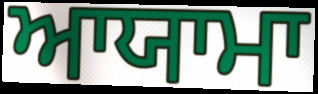
ਆਯਾਮਾ